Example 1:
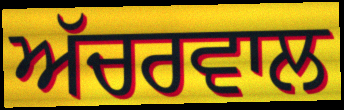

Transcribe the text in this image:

ਅੱਚਰਵਾਲ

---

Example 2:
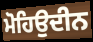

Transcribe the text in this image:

ਮੋਹਿਉਦੀਨ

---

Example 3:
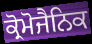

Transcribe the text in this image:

ਕ੍ਰੋਮੋਜੈਨਿਕ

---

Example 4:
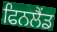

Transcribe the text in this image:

ਫਿਨਲੈਂਡ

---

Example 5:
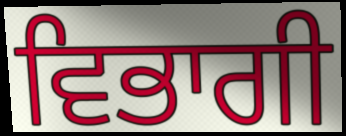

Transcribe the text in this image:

ਵਿਭਾਗੀ